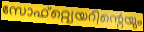
സോഫ്റ്റ്വെയറിന്റെയും